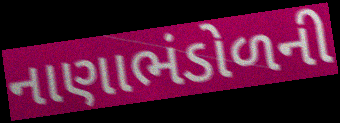
નાણાભંડોળની